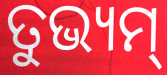
ତୁଭ୍ୟମ୍